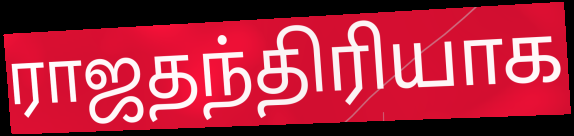
ராஜதந்திரியாக